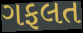
ગફલત